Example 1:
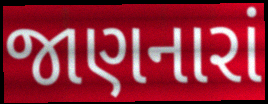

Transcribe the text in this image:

જાણનારાં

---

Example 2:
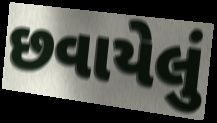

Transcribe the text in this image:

છવાયેલું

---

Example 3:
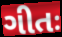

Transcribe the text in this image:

ગીતઃ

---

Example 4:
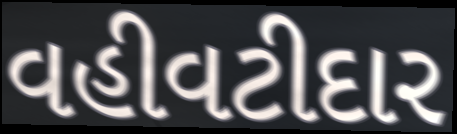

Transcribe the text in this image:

વહીવટીદાર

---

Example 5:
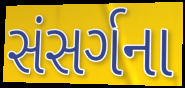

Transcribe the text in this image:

સંસર્ગના